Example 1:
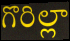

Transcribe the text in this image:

గొరిల్లా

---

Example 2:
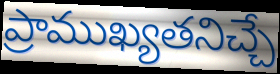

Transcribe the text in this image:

ప్రాముఖ్యతనిచ్చే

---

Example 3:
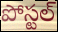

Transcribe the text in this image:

పోస్టల్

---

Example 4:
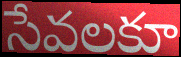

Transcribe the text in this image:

సేవలకూ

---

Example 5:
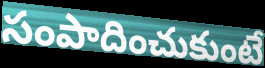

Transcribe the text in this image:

సంపాదించుకుంటే